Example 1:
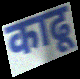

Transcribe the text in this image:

काढू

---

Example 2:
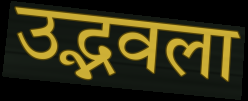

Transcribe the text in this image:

उद्भवला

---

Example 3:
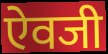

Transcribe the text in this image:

ऐवजी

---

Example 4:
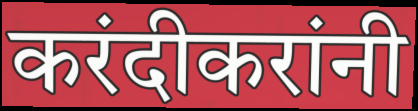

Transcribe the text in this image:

करंदीकरांनी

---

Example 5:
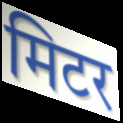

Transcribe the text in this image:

मिटर